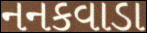
નનકવાડા